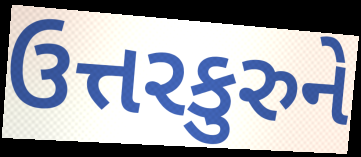
ઉત્તરકુરુને